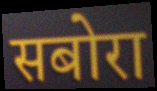
सबोरा